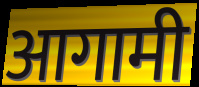
आगामी